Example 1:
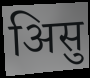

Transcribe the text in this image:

अिसु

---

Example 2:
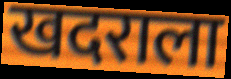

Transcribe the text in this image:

खदराला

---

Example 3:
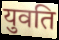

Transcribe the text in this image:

युवति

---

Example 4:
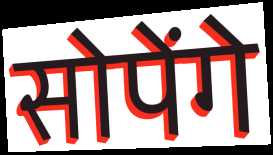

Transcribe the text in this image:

सोपेंगे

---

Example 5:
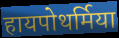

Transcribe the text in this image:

हायपोथर्मिया